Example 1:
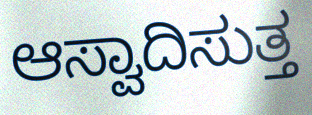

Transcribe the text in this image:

ಆಸ್ವಾದಿಸುತ್ತ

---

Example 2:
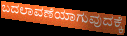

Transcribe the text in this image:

ಬದಲಾವಣೆಯಾಗುವುದಕ್ಕೆ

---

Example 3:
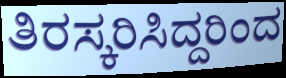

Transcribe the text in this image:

ತಿರಸ್ಕರಿಸಿದ್ದರಿಂದ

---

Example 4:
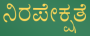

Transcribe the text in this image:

ನಿರಪೇಕ್ಷತೆ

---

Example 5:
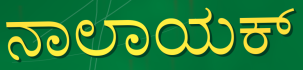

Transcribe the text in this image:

ನಾಲಾಯಕ್